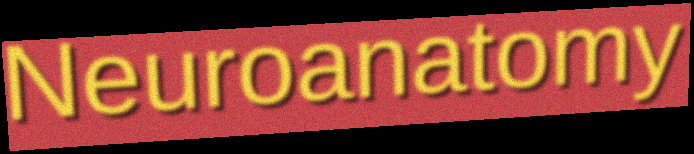
Neuroanatomy